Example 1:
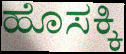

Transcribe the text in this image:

ಹೊಸಕ್ಕಿ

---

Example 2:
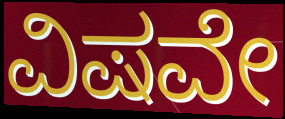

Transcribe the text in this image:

ವಿಷವೇ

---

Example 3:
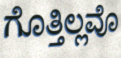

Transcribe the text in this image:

ಗೊತ್ತಿಲ್ಲವೊ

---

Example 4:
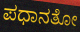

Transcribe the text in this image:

ಪಧಾನತೋ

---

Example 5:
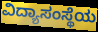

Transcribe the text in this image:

ವಿದ್ಯಾಸಂಸ್ಥೆಯ